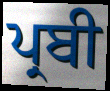
ਪ੍ਰਬੀ